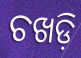
ଚଖଡ଼ି